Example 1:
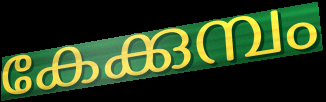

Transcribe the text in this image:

കേക്കുമ്പം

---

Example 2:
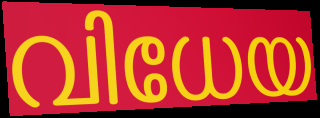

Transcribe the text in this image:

വിധേയ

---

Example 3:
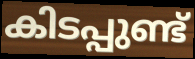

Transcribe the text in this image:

കിടപ്പുണ്ട്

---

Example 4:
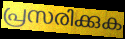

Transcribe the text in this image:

പ്രസരിക്കുക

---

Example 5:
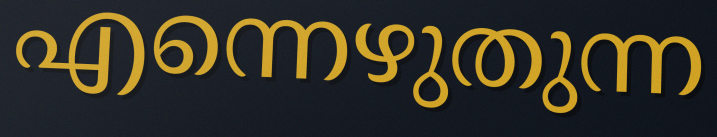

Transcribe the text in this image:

എന്നെഴുതുന്ന